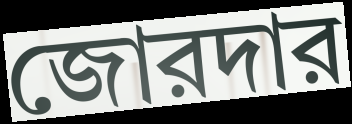
জোরদার